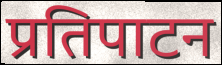
प्रतिपाटन